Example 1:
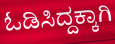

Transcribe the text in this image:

ಓಡಿಸಿದ್ದಕ್ಕಾಗಿ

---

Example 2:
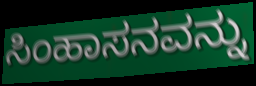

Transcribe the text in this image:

ಸಿಂಹಾಸನವನ್ನು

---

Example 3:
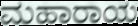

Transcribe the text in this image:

ಮಹಾರಾಯ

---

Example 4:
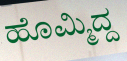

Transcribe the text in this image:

ಹೊಮ್ಮಿದ್ದ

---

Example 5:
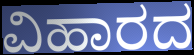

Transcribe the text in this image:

ವಿಹಾರದ